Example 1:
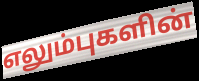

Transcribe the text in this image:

எலும்புகளின்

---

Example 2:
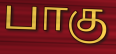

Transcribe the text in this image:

பாகு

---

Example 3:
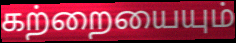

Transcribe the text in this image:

கற்றையையும்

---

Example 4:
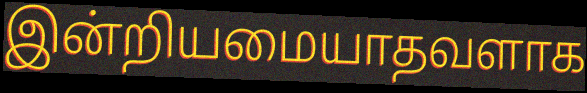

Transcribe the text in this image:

இன்றியமையாதவளாக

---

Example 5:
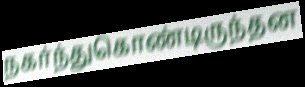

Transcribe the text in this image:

நகர்ந்துகொண்டிருந்தன